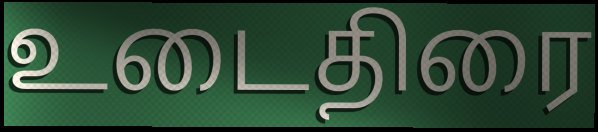
உடைதிரை